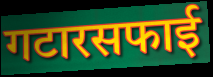
गटारसफाई